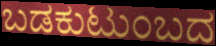
ಬಡಕುಟುಂಬದ